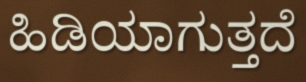
ಹಿಡಿಯಾಗುತ್ತದೆ